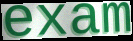
exam